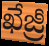
ఖేజ్రీ